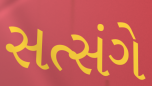
સત્સંગે